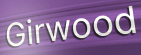
Girwood